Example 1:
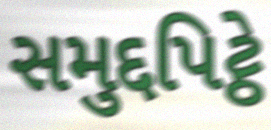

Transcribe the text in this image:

સમુદ્દપિટ્ઠે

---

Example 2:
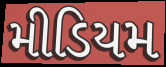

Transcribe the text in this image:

મીડિયમ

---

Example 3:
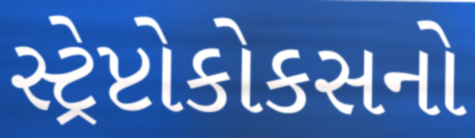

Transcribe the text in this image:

સ્ટ્રેપ્ટોકોકસનો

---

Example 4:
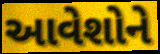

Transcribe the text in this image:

આવેશોને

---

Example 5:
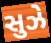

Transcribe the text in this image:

સુઝે